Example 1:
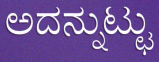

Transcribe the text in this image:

ಅದನ್ನುಟ್ಟು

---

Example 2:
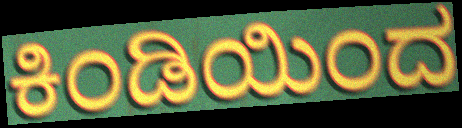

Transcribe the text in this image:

ಕಿಂಡಿಯಿಂದ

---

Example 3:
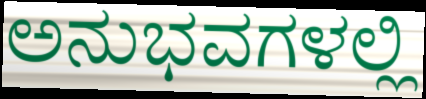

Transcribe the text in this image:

ಅನುಭವಗಳಲ್ಲಿ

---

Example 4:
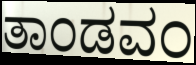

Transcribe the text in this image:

ತಾಂಡವಂ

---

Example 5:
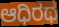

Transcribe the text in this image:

ಆಧಿರಥ